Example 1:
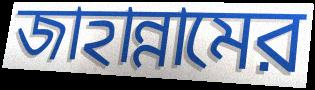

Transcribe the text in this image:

জাহান্নামের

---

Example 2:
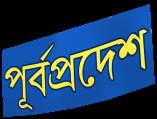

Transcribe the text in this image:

পূর্বপ্রদেশ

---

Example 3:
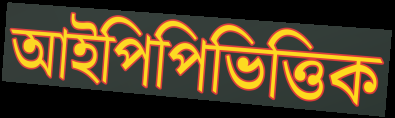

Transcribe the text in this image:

আইপিপিভিত্তিক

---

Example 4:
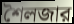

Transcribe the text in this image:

শৈলজার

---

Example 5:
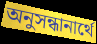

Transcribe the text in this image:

অনুসন্ধানার্থে